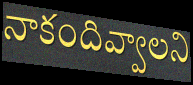
నాకందివ్వాలని